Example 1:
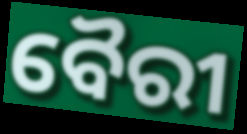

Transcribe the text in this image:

ବୈରୀ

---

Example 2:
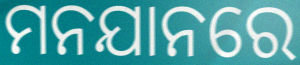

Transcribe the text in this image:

ମନଯାନରେ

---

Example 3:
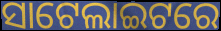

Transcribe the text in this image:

ସାଟେଲାଇଟରେ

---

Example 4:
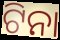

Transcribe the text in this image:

ଟିନା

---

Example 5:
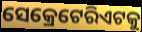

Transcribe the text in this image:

ସେକ୍ରେଟେରିଏଟକୁ